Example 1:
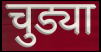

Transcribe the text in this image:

चुड्या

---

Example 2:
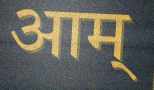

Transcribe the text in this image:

आम्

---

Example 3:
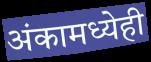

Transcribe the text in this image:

अंकामध्येही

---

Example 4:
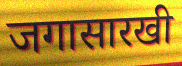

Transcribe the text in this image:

जगासारखी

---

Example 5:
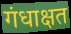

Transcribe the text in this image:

गंधाक्षत